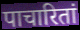
पाचारितां